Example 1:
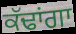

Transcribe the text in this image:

ਕੱਢਾਂਗਾ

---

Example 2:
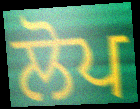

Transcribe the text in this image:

ਲੋਪ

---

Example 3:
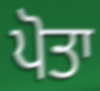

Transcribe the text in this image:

ਪੋਤਾ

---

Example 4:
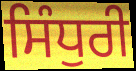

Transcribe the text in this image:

ਸਿੰਧੁਰੀ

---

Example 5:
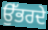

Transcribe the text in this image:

ਉੱਭਰਦੇ